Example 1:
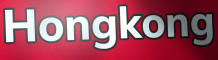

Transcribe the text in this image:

Hongkong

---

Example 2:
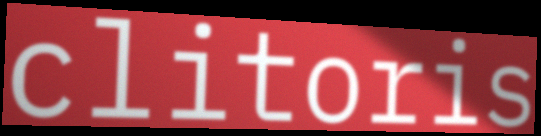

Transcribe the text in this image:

clitoris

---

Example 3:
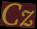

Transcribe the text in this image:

Cz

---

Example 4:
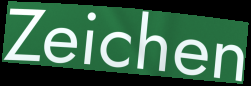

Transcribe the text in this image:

Zeichen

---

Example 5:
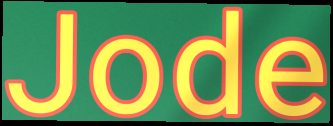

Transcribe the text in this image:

Jode